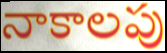
నాకాలపు